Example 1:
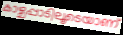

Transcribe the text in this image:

കാഴ്ചപ്പാടിലൂടെയാണ്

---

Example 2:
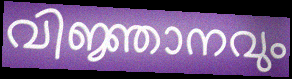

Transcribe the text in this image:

വിജ്ഞാനവും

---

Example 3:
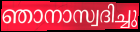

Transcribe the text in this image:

ഞാനാസ്വദിച്ചു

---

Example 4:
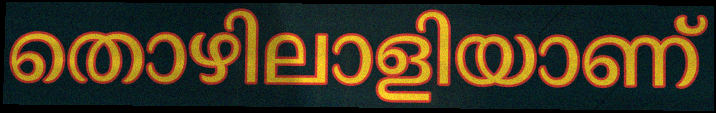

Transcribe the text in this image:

തൊഴിലാളിയാണ്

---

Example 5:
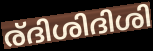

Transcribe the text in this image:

ര്ദിശിദിശി